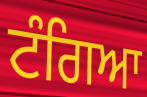
ਟੰਗਿਆ